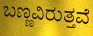
ಬಣ್ಣವಿರುತ್ತವೆ